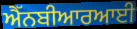
ਐੱਨਬੀਆਰਆਈ